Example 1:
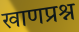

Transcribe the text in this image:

खाणप्रश्न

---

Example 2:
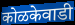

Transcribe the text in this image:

कोळकेवाडी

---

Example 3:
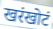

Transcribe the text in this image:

खरंखोटं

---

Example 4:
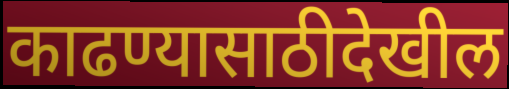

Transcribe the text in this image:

काढण्यासाठीदेखील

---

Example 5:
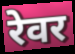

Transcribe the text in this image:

रेवर